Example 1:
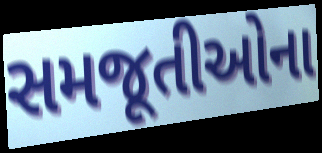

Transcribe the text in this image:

સમજૂતીઓના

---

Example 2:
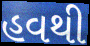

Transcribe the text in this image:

હવથી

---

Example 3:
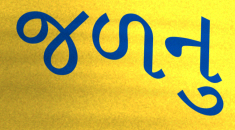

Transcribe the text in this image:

જળનુ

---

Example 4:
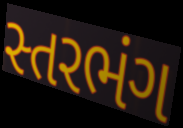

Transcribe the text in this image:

સ્તરભંગ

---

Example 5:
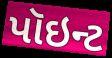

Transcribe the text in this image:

પૉઇન્ટ